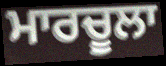
ਮਾਰਚੂਲਾ